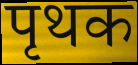
पृथक